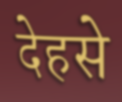
देहसे